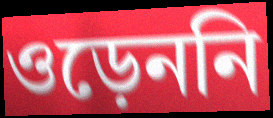
ওড়েননি